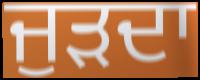
ਜੁੜਦਾ